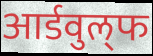
आर्डवुल्फ